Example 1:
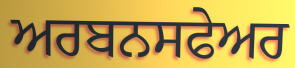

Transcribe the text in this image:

ਅਰਬਨਸਫੇਅਰ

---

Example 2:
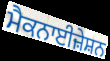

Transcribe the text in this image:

ਮੈਕਨਾਈਜ਼ੇਸ਼ਨ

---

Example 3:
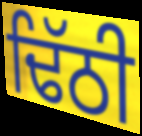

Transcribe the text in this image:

ਢਿੱਠੀ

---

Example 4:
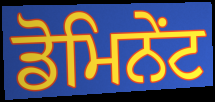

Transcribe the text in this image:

ਡੋਮਿਨੇਂਟ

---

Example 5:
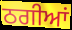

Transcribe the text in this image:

ਠਗੀਆਂ